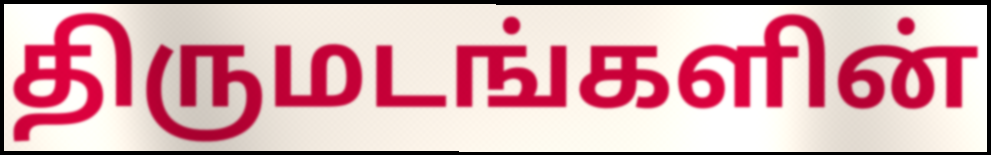
திருமடங்களின்